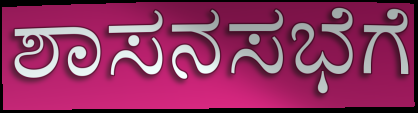
ಶಾಸನಸಭೆಗೆ